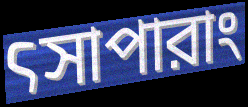
ৎসাপারাং